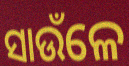
ସାଉଁଳେ